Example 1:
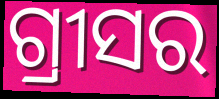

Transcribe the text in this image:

ଗ୍ରୀସର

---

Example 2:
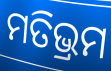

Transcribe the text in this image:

ମତିଭ୍ରମ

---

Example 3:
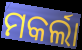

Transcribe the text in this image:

ମକର୍ଲା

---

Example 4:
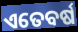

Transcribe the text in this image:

ଏତେବର୍ଷ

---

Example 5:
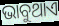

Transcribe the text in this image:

ଭାବୁଥାଏ